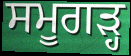
ਸਮੂਗੜ੍ਹ